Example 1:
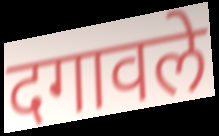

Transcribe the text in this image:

दगावले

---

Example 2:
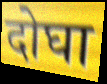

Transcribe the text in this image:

दोघा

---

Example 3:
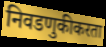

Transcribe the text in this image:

निवडणुकीकरता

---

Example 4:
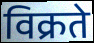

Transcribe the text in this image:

विक्रते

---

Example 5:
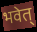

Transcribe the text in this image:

भवेत्